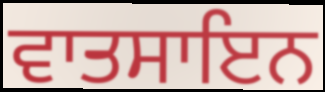
ਵਾਤਸਾਇਨ